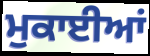
ਮੁਕਾਈਆਂ